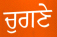
ਚੁਗਣੇ